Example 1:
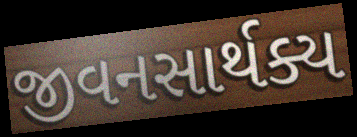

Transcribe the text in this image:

જીવનસાર્થક્ય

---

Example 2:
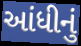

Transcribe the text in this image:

આંધીનું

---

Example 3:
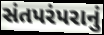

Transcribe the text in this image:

સંતપરંપરાનું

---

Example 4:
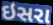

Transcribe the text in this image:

ઇસરા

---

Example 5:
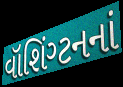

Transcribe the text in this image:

વૉશિંગ્ટનનાં